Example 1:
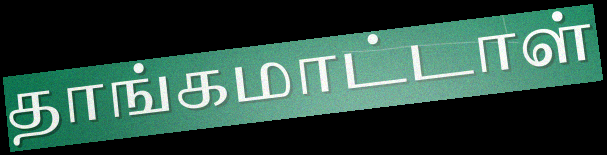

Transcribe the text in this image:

தாங்கமாட்டாள்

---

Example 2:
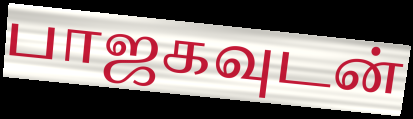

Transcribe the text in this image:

பாஜகவுடன்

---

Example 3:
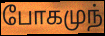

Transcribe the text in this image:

போகமுந்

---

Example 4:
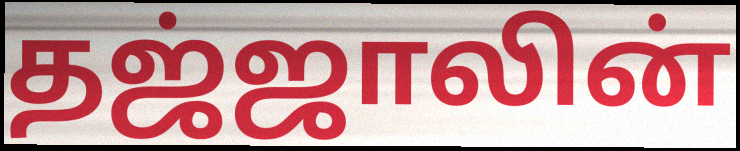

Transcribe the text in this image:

தஜ்ஜாலின்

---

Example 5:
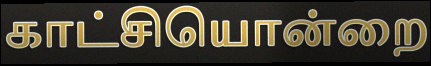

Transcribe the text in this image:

காட்சியொன்றை